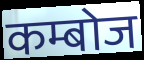
कम्बोज